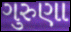
ગુરુણા